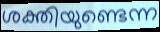
ശക്തിയുണ്ടെന്ന